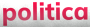
politica